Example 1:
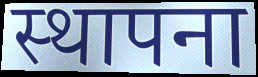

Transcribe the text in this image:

स्थापना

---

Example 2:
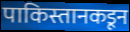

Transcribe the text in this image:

पाकिस्तानकडून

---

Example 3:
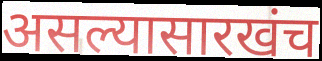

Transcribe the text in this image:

असल्यासारखंच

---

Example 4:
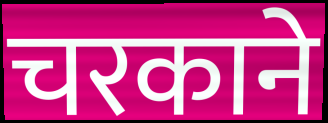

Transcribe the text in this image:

चरकाने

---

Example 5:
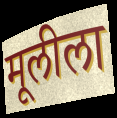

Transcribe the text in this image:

मूलीला